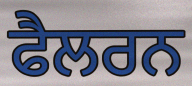
ਫੈਲਰਨ